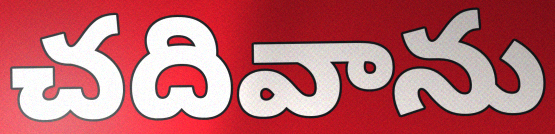
చదివాను